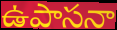
ఉపాసనా